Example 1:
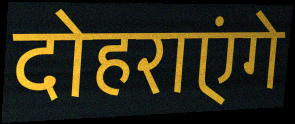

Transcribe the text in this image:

दोहराएंगे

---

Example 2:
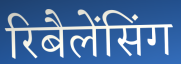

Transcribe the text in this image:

रिबैलेंसिंग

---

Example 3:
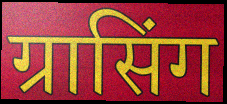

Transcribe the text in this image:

ग्रासिंग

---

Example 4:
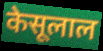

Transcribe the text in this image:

केसूलाल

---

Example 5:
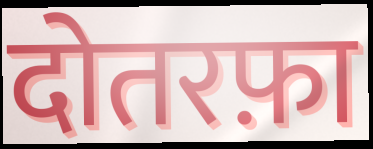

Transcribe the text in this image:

दोतरफ़ा